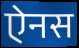
ऐनस